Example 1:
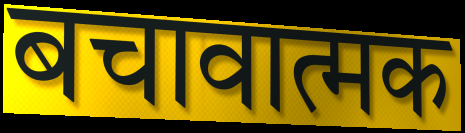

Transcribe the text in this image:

बचावात्मक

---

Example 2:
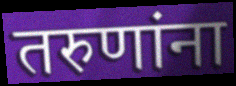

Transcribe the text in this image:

तरुणांना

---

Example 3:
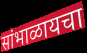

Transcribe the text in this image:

सांभाळायचा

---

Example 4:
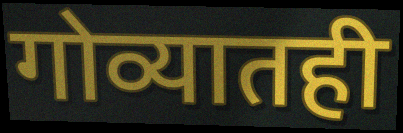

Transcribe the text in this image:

गोव्यातही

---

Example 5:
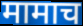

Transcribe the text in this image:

मामाच